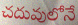
చదువులోనే